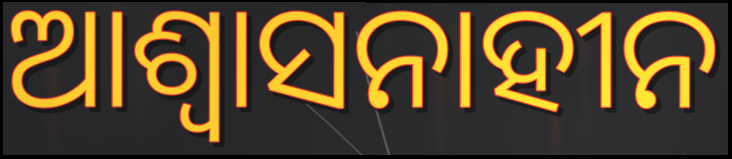
ଆଶ୍ୱାସନାହୀନ